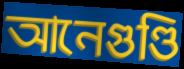
আনেগুণ্ডি